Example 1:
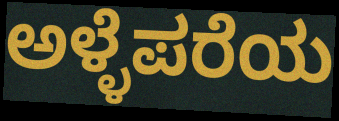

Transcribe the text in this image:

ಅಳ್ಳೆಪರೆಯ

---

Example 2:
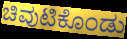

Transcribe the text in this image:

ಚಿವುಟಿಕೊಂಡು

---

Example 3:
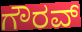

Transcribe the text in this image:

ಗೌರವ್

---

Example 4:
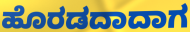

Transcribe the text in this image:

ಹೊರಡದಾದಾಗ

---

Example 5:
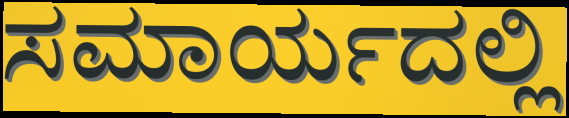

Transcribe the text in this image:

ಸಮಾರ್ಯದಲ್ಲಿ